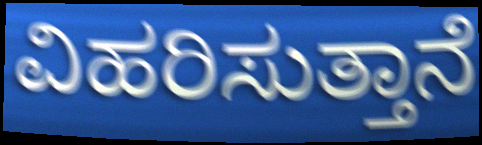
ವಿಹರಿಸುತ್ತಾನೆ